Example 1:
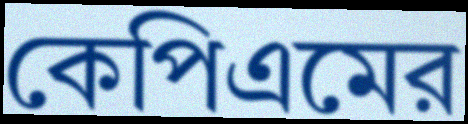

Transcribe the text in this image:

কেপিএমের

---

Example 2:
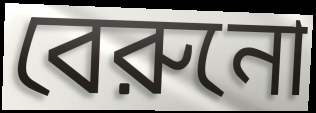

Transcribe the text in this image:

বেরুনো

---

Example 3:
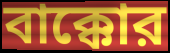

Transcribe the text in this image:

বাক্কোর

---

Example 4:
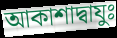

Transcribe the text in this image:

আকাশাদ্বাযুঃ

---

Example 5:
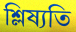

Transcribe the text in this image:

শ্লিষ্যতি